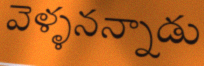
వెళ్ళనన్నాడు